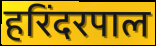
हरिंदरपाल